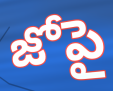
జోపై